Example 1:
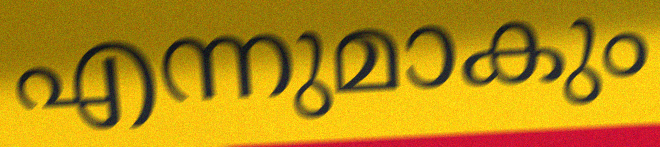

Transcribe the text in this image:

എന്നുമാകും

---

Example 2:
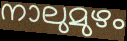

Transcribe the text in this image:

നാലുമുഴം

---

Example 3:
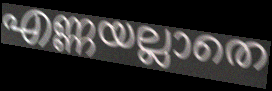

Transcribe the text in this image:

എണ്ണയല്ലാതെ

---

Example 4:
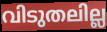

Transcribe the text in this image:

വിടുതലില്ല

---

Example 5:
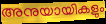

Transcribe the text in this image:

അനുയായികളും